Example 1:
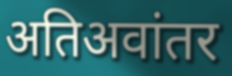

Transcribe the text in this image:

अतिअवांतर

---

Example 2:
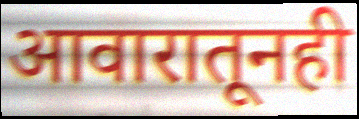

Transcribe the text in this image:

आवारातूनही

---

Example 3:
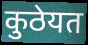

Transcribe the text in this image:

कुठेयत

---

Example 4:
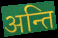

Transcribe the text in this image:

अन्ति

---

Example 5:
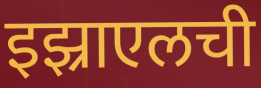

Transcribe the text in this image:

इझ्राएलची